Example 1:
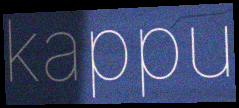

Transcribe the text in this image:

kappu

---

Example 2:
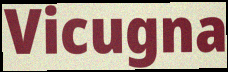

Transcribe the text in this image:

Vicugna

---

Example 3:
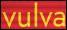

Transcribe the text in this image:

vulva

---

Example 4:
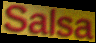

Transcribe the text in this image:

Salsa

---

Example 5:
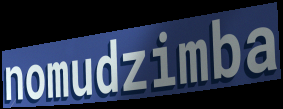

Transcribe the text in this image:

nomudzimba